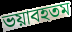
ভয়াবহতম